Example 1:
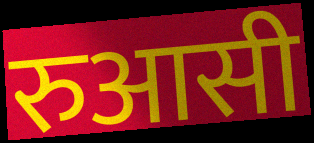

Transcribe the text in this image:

रुआसी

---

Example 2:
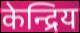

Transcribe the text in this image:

केन्द्रिय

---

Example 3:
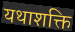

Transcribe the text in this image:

यथाशक्ति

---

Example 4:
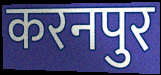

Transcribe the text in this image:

करनपुर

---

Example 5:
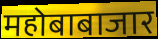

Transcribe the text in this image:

महोबाबाजार